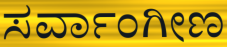
ಸರ್ವಾಂಗೀಣ